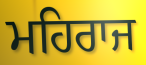
ਮਹਿਰਾਜ